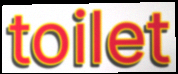
toilet